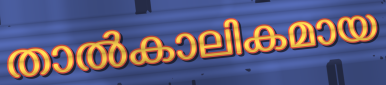
താൽകാലികമായ